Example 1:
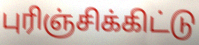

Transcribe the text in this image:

புரிஞ்சிக்கிட்டு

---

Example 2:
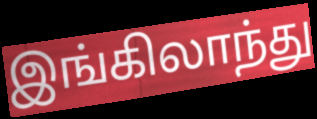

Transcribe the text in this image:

இங்கிலாந்து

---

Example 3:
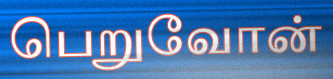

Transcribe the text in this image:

பெறுவோன்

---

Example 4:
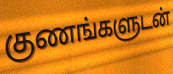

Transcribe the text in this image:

குணங்களுடன்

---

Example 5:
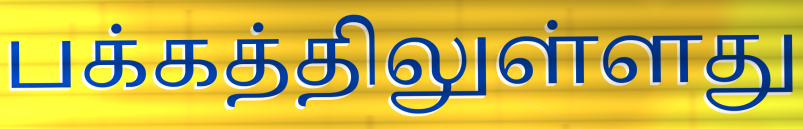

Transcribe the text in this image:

பக்கத்திலுள்ளது